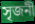
সৃজনী